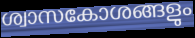
ശ്വാസകോശങ്ങളും